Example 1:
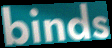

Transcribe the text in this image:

binds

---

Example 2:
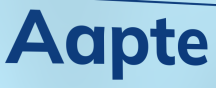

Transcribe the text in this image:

Aapte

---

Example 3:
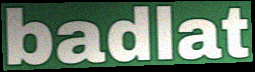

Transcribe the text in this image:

badlat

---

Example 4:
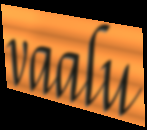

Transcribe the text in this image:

vaalu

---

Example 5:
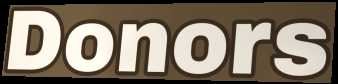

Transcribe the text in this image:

Donors